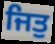
ਜਿਤੁ